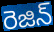
రెజిన్